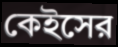
কেইসের